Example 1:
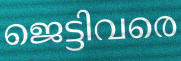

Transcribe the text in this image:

ജെട്ടിവരെ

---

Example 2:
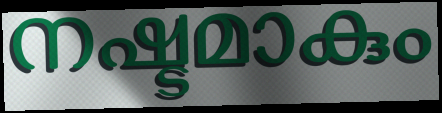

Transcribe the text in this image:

നഷ്ടമാകും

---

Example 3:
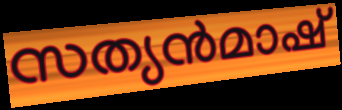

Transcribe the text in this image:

സത്യൻമാഷ്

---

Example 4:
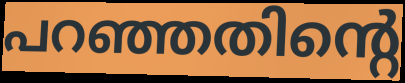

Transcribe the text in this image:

പറഞ്ഞതിന്റെ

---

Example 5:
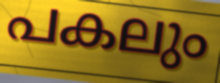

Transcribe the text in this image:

പകലും